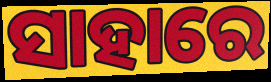
ସାହାରେ